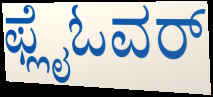
ಫ್ಲೈಓವರ್